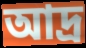
আদ্র